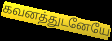
கவனத்துடனேயே